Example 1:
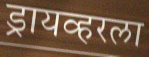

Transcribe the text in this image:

ड्रायव्हरला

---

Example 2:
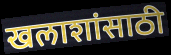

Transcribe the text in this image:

खलाशांसाठी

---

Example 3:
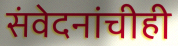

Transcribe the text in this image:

संवेदनांचीही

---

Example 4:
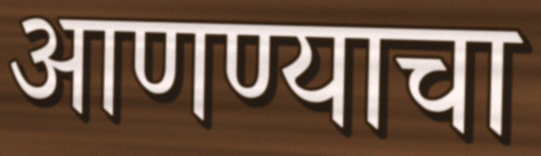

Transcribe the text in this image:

आणण्याचा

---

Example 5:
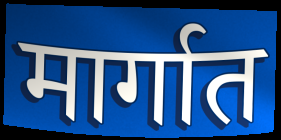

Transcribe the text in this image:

मार्गात